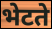
भेटते